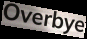
Overbye